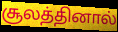
சூலத்தினால்